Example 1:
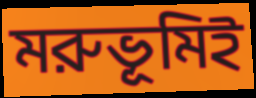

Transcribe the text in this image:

মরুভূমিই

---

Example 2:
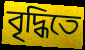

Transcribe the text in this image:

বৃদ্ধিতে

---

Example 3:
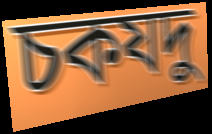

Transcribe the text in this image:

চকযদু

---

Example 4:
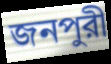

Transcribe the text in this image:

জনপুরী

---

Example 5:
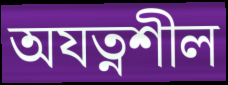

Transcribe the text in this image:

অযত্নশীল